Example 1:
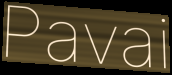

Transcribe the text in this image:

Pavai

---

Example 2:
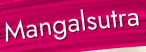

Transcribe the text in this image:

Mangalsutra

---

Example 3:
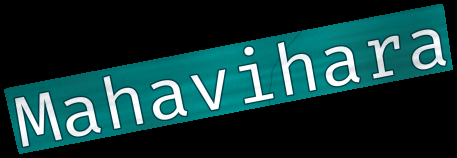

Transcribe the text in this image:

Mahavihara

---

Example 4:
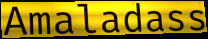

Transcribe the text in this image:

Amaladass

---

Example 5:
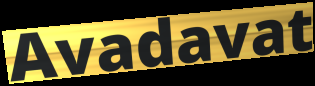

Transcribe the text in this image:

Avadavat